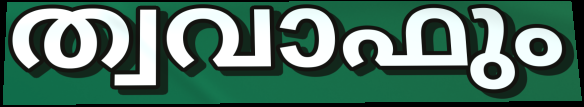
ത്വവാഫും